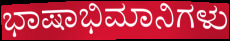
ಭಾಷಾಭಿಮಾನಿಗಳು